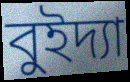
বুইদ্যা